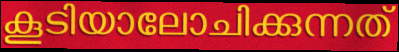
കൂടിയാലോചിക്കുന്നത്